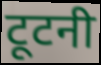
टूटनी